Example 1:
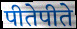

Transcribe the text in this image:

पीतेपीते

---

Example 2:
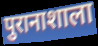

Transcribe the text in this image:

पुरानाशाला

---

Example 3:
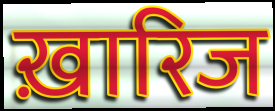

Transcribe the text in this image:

ख़ारिज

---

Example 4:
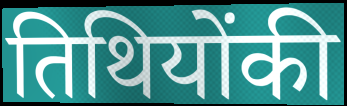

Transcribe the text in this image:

तिथियोंकी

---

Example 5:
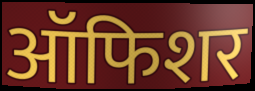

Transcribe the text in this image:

ऑफिशर